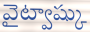
వైట్వాష్కు